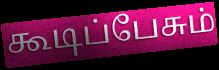
கூடிப்பேசும்